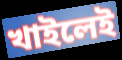
খাইলেই